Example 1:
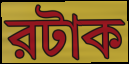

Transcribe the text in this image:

রটাক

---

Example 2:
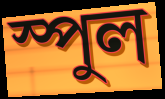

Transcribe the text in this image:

স্পুল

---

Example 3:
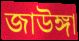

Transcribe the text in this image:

জাউঙ্গা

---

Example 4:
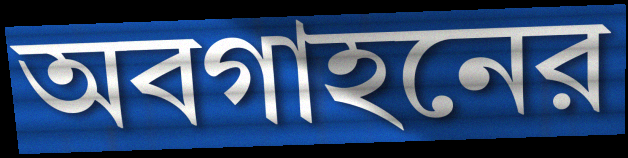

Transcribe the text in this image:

অবগাহনের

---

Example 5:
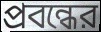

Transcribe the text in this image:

প্রবন্ধের